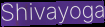
Shivayoga